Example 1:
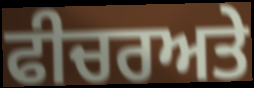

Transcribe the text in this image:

ਫੀਚਰਅਤੇ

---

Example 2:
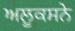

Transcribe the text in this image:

ਅਲੂਕਸਨੇ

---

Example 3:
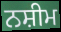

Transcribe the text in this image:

ਨਸ਼ੀਮ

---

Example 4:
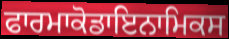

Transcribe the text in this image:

ਫਾਰਮਾਕੋਡਾਇਨਾਮਿਕਸ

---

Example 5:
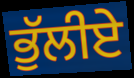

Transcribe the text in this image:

ਭੁੱਲੀਏ